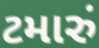
ટમારું